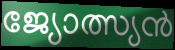
ജ്യോത്സ്യൻ